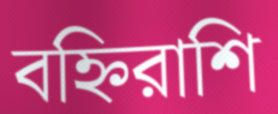
বহ্নিরাশি